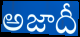
అజాదీ